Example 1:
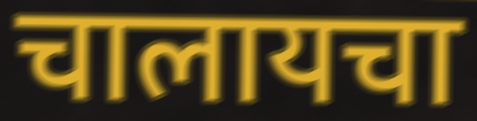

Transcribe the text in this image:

चालायचा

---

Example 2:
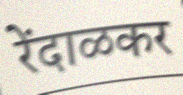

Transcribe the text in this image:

रेंदाळकर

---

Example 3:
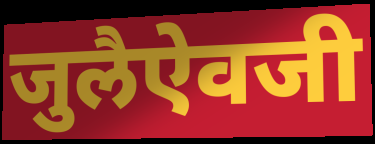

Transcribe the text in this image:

जुलैऐवजी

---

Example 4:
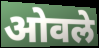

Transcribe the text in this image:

ओवले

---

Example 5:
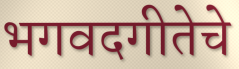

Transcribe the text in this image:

भगवदगीतेचे